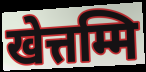
खेत्तम्मि